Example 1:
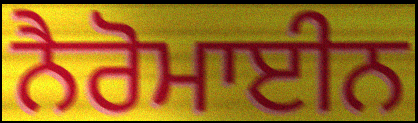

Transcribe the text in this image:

ਨੈਰੋਮਾਈਨ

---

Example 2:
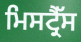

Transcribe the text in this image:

ਮਿਸਟ੍ਰੈੱਸ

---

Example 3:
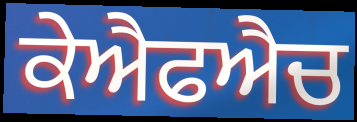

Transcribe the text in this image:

ਕੇਐਫਐਚ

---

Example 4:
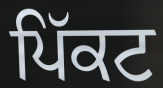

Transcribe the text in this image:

ਪਿੱਕਟ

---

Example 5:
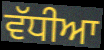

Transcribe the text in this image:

ਵੱਧੀਆ